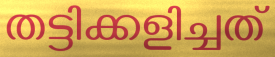
തട്ടിക്കളിച്ചത്